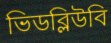
ভিডব্লিউবি